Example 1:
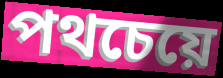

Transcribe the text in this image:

পথচেয়ে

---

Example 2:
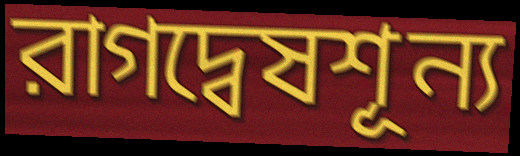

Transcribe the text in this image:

রাগদ্বেষশূন্য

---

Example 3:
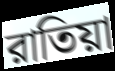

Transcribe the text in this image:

রাতিয়া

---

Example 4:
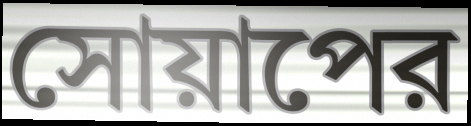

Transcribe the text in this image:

সোয়াপের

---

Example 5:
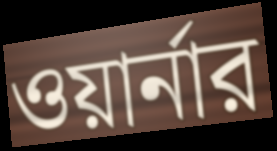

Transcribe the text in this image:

ওয়ার্নার